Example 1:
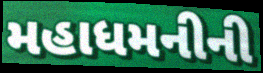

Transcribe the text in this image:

મહાધમનીની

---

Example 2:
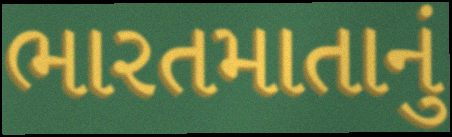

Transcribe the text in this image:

ભારતમાતાનું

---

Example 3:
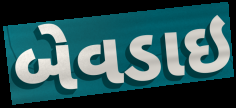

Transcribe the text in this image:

બેવડાઇ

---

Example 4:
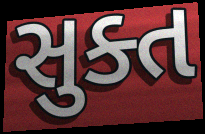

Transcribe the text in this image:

સુક્ત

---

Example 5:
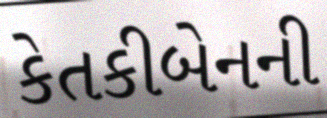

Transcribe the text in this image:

કેતકીબેનની